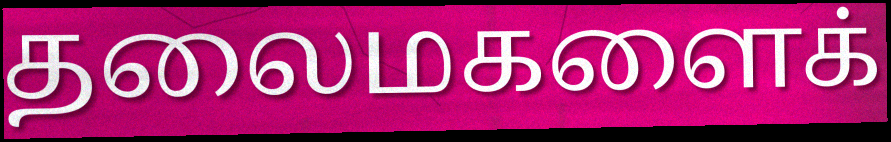
தலைமகளைக்